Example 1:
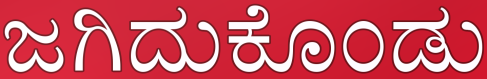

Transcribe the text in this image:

ಜಗಿದುಕೊಂಡು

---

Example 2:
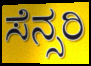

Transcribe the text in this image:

ಸೆನ್ಸರಿ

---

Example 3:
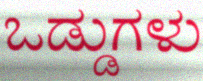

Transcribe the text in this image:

ಒಡ್ಡುಗಳು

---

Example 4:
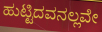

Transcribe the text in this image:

ಹುಟ್ಟಿದವನಲ್ಲವೇ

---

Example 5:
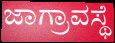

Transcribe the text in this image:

ಜಾಗ್ರಾವಸ್ಥೆ